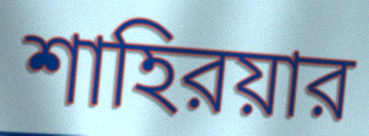
শাহিরয়ার